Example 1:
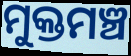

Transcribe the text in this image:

ମୁକ୍ତମଞ୍ଚ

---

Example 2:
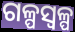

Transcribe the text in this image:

ଗଳ୍ପସ୍ୱଳ୍ପ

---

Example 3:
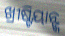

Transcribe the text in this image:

ଖ୍ରୀଷ୍ଟିୟାନ୍ଙ୍କ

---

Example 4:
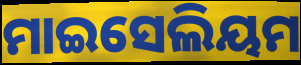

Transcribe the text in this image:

ମାଇସେଲିୟମ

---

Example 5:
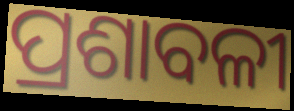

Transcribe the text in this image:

ପ୍ରଶାବଳୀ